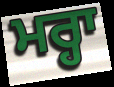
ਮਰ੍ਹਾ